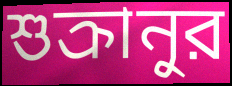
শুক্রানুর